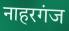
नाहरगंज